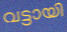
വട്ടായി